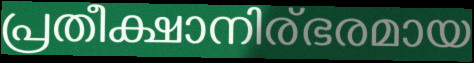
പ്രതീക്ഷാനിര്ഭരമായ